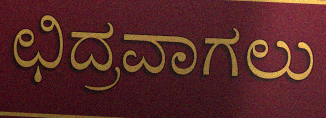
ಛಿದ್ರವಾಗಲು